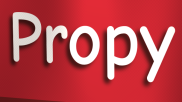
Propy